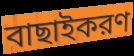
বাছাইকরণ